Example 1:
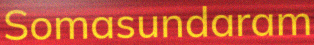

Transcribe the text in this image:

Somasundaram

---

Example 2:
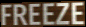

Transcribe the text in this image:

FREEZE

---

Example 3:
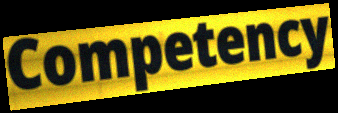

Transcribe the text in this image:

Competency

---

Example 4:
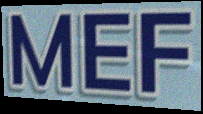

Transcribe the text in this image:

MEF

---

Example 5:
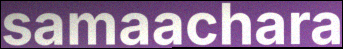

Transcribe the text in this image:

samaachara